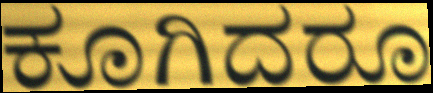
ಕೂಗಿದರೂ